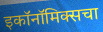
इकॉनॉमिक्सचा